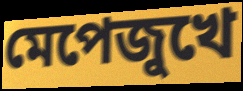
মেপেজুখে